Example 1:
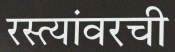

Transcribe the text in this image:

रस्त्यांवरची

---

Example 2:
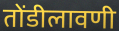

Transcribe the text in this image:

तोंडीलावणी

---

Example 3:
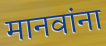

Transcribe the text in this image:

मानवांना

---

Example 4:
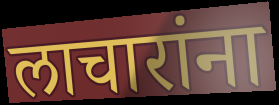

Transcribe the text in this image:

लाचारांना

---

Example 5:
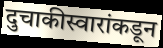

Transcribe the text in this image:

दुचाकीस्वारांकडून